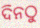
ଦିନଠୁ